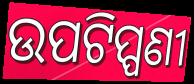
ଉପଟିପ୍ପଣୀ